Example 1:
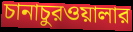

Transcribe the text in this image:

চানাচুরওয়ালার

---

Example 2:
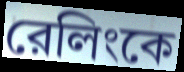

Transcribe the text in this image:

রেলিংকে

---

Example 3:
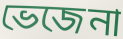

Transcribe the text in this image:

ভেজেনা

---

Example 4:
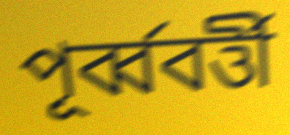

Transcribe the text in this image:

পূর্ব্ববর্ত্তী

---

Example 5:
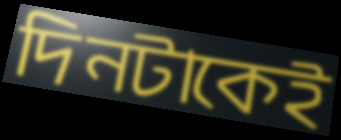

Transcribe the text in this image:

দিনটাকেই